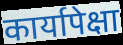
कार्यापेक्षा